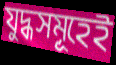
যুদ্ধসমূহেই